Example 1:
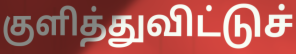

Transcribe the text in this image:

குளித்துவிட்டுச்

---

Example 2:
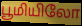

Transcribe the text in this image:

பூமியிலோ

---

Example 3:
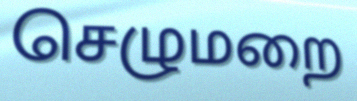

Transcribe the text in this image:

செழுமறை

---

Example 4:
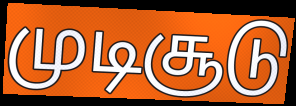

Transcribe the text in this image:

முடிசூடு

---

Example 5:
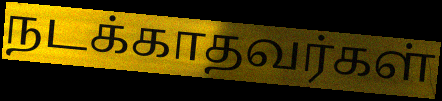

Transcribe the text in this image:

நடக்காதவர்கள்